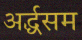
अर्द्धसम